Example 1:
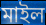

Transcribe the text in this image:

মাইল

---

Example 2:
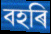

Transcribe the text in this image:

বহৰি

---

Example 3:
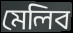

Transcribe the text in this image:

মেলিব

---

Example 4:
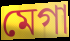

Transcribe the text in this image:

মেগা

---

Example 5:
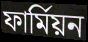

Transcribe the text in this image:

ফাৰ্মিয়ন